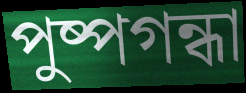
পুষ্পগন্ধা